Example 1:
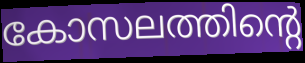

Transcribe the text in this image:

കോസലത്തിന്റെ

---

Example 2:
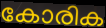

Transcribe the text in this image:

കോരിക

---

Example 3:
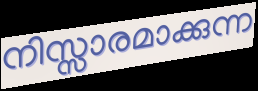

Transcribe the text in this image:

നിസ്സാരമാക്കുന്ന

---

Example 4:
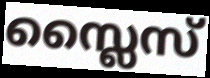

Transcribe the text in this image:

സ്ലൈസ്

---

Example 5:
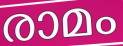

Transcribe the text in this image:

രാമം